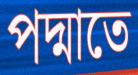
পদ্মাতে